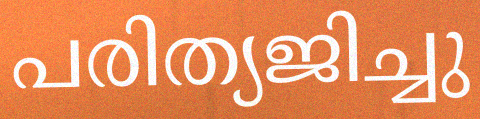
പരിത്യജിച്ചു